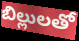
బిల్లులతో